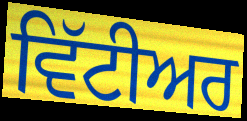
ਵਿੱਟੀਅਰ